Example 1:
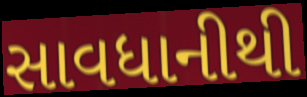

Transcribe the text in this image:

સાવધાનીથી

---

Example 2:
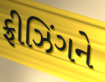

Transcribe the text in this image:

ફ્રીઝિંગને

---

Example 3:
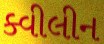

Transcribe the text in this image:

ક્વીલીન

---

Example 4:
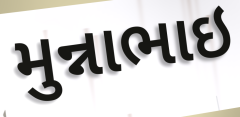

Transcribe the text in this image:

મુન્નાભાઇ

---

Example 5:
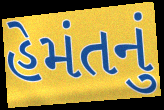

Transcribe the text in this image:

હેમંતનું